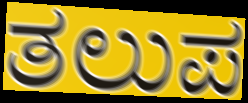
ತಲುಪ